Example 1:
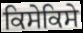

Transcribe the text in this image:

ਕਿਸੇਕਿਸੇ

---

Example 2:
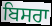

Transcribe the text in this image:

ਬਿਸਰਾ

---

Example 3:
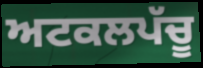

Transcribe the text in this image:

ਅਟਕਲਪੱਚੂ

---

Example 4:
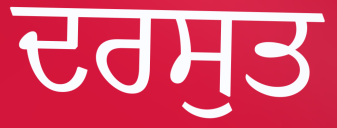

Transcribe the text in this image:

ਦਰਸੁਤ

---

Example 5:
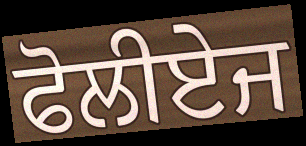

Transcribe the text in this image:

ਫੋਲੀਏਜ